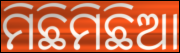
ମିଛିମିଛିଆ